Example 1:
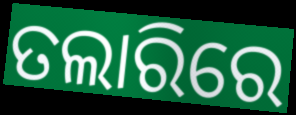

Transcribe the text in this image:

ତଲାରିରେ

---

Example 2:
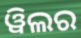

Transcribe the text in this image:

ୱିଲର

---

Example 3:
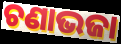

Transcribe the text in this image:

ଚଣାଭଜା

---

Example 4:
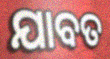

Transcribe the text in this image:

ଯାବତ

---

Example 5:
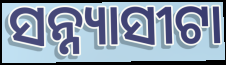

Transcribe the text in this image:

ସନ୍ନ୍ୟାସୀଟା